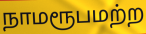
நாமரூபமற்ற